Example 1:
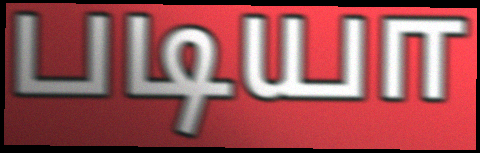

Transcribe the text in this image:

படியா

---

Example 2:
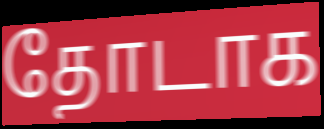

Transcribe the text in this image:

தோடாக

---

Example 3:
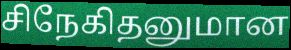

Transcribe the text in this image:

சிநேகிதனுமான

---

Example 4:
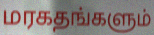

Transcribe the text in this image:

மரகதங்களும்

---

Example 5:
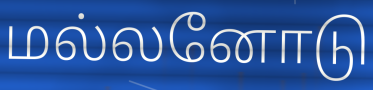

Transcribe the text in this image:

மல்லனோடு